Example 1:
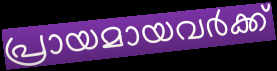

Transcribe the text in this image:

പ്രായമായവർക്ക്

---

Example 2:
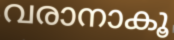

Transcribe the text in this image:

വരാനാകൂ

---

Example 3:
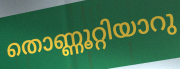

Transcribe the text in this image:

തൊണ്ണൂറ്റിയാറു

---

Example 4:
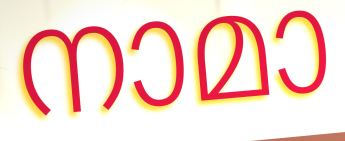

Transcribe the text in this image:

നാമാ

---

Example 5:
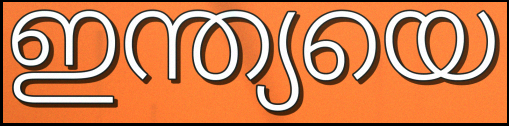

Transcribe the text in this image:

ഇന്ത്യയെ